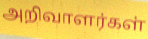
அறிவாளர்கள்